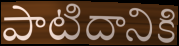
పాటిదానికి